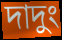
দাদুং